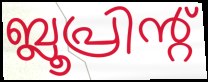
ബ്ലൂപ്രിന്റ്